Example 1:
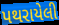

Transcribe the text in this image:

પથરાયેલી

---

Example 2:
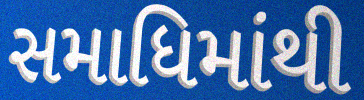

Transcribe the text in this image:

સમાધિમાંથી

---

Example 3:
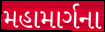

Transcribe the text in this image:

મહામાર્ગના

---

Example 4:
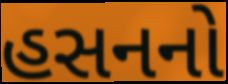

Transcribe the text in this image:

હસનનો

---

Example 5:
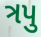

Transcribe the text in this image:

ત્રપુ